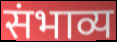
संभाव्य